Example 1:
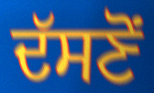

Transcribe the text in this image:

ਦੱਸਣੋਂ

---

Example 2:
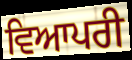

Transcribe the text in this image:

ਵਿਆਪਰੀ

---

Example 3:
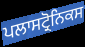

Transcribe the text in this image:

ਪਲਾਸਟ੍ਰੋਨਿਕਸ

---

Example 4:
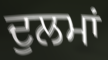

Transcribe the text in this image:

ਦੁਲਮਾਂ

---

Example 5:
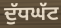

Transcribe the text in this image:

ਦੁੱਧਘੱਟ